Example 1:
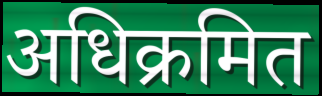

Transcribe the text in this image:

अधिक्रमित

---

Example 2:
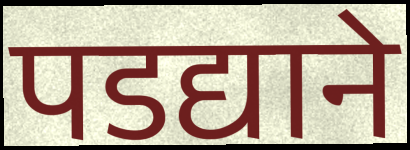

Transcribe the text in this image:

पडद्याने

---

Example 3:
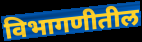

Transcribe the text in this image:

विभागणीतील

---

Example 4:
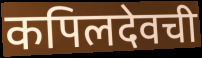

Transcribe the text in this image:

कपिलदेवची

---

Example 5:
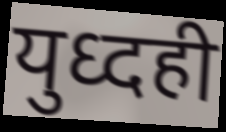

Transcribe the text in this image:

युध्दही